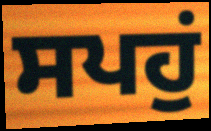
ਸਪਹੁਂ